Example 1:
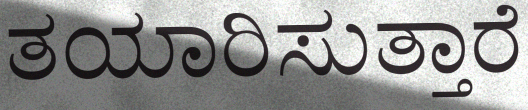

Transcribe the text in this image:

ತಯಾರಿಸುತ್ತಾರೆ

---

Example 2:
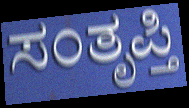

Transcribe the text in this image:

ಸಂತೃಪ್ತಿ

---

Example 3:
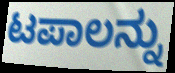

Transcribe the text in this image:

ಟಪಾಲನ್ನು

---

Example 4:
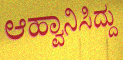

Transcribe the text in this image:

ಆಹ್ವಾನಿಸಿದ್ದು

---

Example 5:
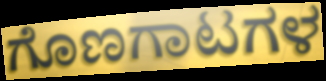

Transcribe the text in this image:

ಗೊಣಗಾಟಗಳ